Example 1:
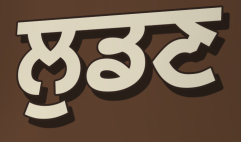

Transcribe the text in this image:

ਲੁਡਣ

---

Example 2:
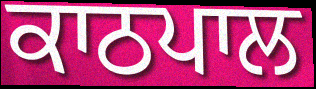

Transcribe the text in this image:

ਕਾਠਪਾਲ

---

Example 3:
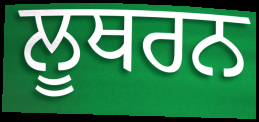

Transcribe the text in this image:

ਲੂਥਰਨ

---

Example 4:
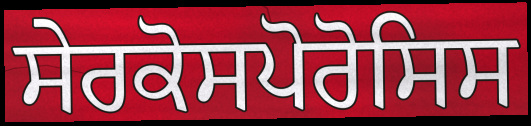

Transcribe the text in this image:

ਸੇਰਕੋਸਪੋਰੋਸਿਸ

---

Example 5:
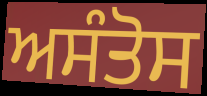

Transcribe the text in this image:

ਅਸੰਤੋਸ